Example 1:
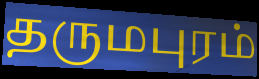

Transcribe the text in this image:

தருமபுரம்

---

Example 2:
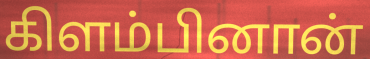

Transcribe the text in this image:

கிளம்பினான்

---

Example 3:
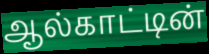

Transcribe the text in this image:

ஆல்காட்டின்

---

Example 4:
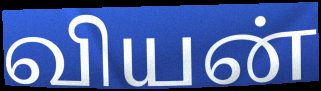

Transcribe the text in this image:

வியன்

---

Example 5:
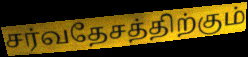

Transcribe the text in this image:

சர்வதேசத்திற்கும்